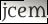
jcem